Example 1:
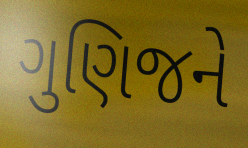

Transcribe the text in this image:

ગુણિજને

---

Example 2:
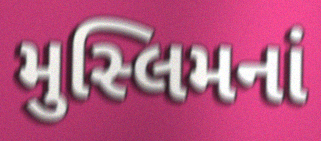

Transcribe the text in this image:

મુસ્લિમનાં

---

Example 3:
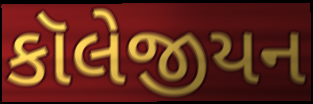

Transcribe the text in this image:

કૉલેજીયન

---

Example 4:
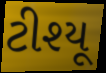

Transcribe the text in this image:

ટીશ્યૂ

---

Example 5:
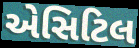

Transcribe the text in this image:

એસિટિલ